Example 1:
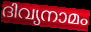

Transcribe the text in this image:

ദിവ്യനാമം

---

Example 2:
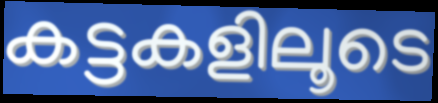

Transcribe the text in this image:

കട്ടകളിലൂടെ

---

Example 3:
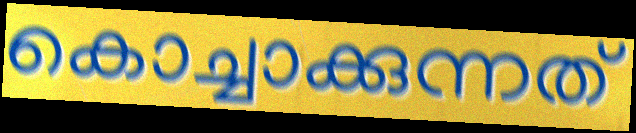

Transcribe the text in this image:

കൊച്ചാക്കുന്നത്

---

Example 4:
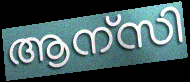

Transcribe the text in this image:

ആന്സി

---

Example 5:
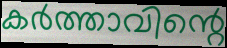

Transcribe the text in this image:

കർത്താവിന്റെ